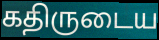
கதிருடைய